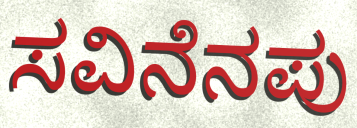
ಸವಿನೆನಪು